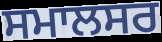
ਸਮਾਲਸਰ